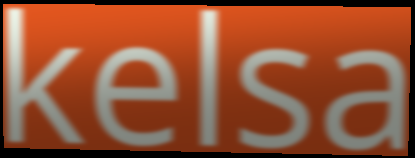
kelsa